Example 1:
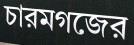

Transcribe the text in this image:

চারমগজের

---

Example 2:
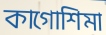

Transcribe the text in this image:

কাগোশিমা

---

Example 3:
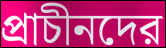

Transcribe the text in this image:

প্রাচীনদের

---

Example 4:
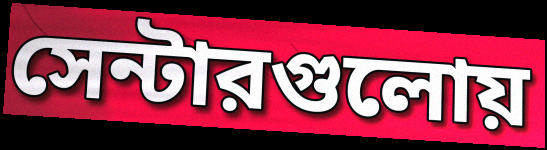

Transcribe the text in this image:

সেন্টারগুলোয়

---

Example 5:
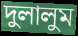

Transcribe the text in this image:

দুলালুম